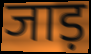
जाड़